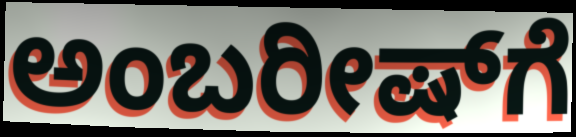
ಅಂಬರೀಷ್‌ಗೆ